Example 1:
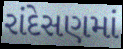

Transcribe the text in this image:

રાંદેસણમાં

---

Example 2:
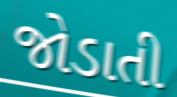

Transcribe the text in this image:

જોડાતી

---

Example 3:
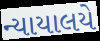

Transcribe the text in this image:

ન્યાયાલયે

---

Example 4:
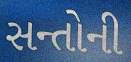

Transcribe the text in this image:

સન્તોની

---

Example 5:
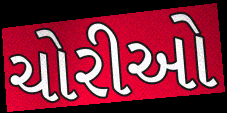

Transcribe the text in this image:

ચોરીઓ